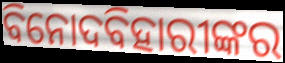
ବିନୋଦବିହାରୀଙ୍କର